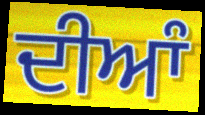
ਦੀਆੰ